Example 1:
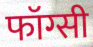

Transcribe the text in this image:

फॉग्सी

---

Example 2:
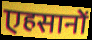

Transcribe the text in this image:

एहसानों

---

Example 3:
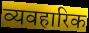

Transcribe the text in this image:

व्यवहारिक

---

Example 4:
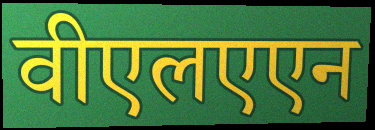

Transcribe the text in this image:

वीएलएएन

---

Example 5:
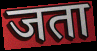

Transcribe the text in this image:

जता